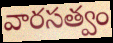
వారసత్వం